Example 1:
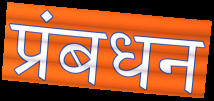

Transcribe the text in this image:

प्रंबधन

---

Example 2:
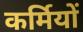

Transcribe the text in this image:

कर्मियों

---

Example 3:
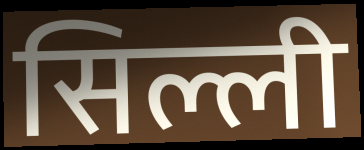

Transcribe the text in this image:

सिल्ली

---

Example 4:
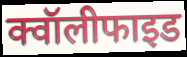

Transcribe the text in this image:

क्वॉलीफाइड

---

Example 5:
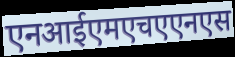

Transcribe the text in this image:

एनआईएमएचएएनएस